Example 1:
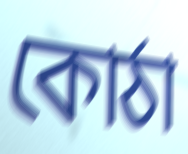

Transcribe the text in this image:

কোঠা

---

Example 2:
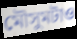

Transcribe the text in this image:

মৌসুমটাও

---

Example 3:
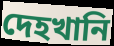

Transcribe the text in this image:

দেহখানি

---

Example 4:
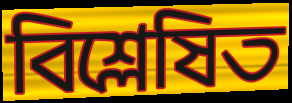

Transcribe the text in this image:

বিশ্লেষিত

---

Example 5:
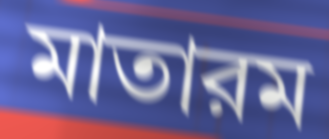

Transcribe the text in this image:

মাতারম